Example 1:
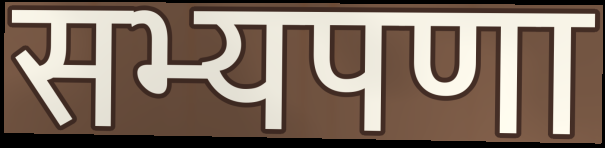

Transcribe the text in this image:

सभ्यपणा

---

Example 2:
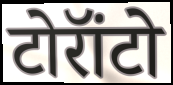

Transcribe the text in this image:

टोरॉंटो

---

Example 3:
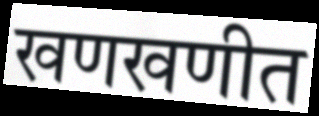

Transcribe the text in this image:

खणखणीत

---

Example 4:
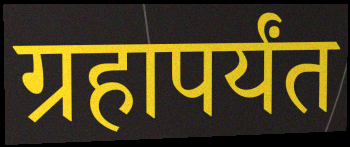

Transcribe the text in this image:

ग्रहापर्यंत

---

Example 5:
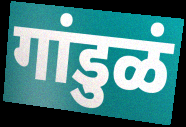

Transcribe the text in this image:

गांडुळं